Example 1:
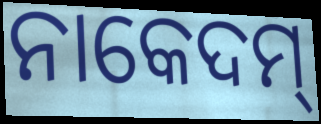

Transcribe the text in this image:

ନାକେଦମ୍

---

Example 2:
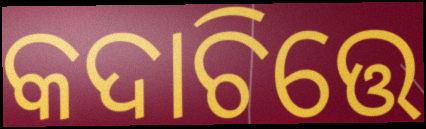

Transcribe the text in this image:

କଦାଚିତ୍ତେ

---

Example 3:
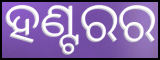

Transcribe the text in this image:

ହଣ୍ଟରର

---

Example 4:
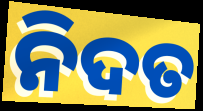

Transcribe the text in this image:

ନିଦତ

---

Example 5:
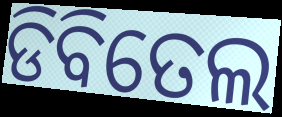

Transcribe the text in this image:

ଡିବିତେଲ